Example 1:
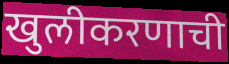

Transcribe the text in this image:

खुलीकरणाची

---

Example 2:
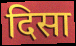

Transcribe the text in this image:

दिसा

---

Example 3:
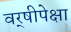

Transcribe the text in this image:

वर्षीपेक्षा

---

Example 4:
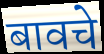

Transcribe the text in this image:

बावचे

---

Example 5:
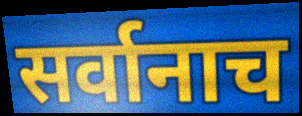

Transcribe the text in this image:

सर्वानाच